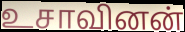
உசாவினன்